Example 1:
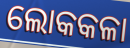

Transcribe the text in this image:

ଲୋକକଳା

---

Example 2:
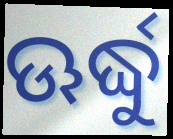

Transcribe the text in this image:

ଊର୍ଦ୍ଧୁ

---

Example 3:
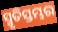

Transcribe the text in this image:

ସ୍ମୃତିସ୍ତମ୍ଭର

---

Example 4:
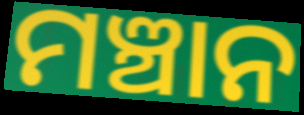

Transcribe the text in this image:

ମଞ୍ଚାନ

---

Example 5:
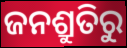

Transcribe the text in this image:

ଜନଶ୍ରୁତିରୁ